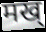
मख्